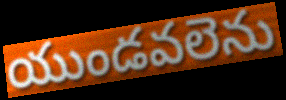
యుండవలెను